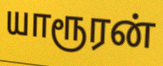
யாரூரன்